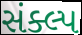
સંક્લ્પ